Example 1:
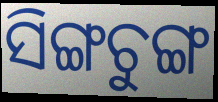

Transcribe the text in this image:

ସିଙ୍ଗଚୁଙ୍ଗ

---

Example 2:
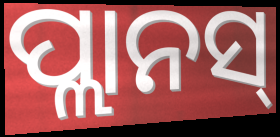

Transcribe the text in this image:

ପ୍ଲାନସ୍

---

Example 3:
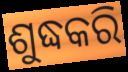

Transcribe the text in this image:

ଶୁଦ୍ଧକରି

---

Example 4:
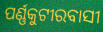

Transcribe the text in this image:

ପର୍ଣ୍ଣକୁଟୀରବାସୀ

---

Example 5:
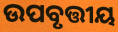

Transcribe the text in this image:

ଉପବୃତ୍ତୀୟ